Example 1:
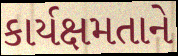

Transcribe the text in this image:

કાર્યક્ષમતાને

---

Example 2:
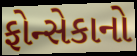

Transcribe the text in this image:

ફોન્સેકાનો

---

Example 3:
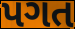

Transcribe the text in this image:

પગત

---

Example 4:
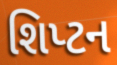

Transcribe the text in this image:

શિપ્ટન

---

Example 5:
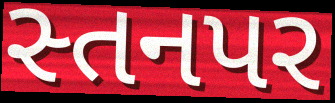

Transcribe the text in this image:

સ્તનપર